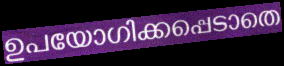
ഉപയോഗിക്കപ്പെടാതെ